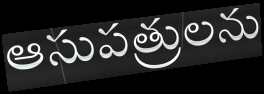
ఆసుపత్రులను